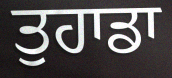
ਤੁਹਾਡਾ